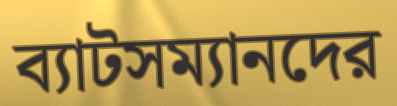
ব্যাটসম্যানদের